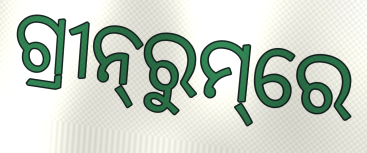
ଗ୍ରୀନ୍‌ରୁମ୍‌ରେ